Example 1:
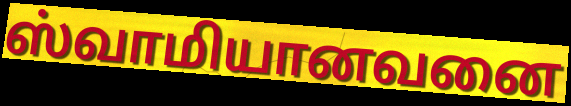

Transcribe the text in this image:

ஸ்வாமியானவனை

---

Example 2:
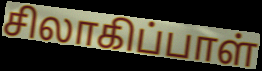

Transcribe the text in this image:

சிலாகிப்பாள்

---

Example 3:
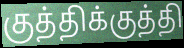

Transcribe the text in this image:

குத்திக்குத்தி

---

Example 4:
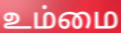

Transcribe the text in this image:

உம்மை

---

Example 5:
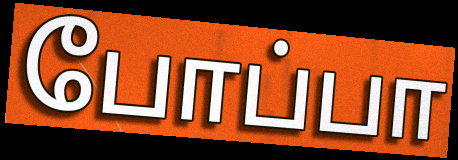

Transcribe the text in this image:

போப்பா